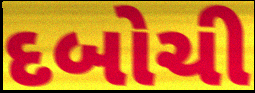
દબોચી